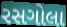
રસગોલા